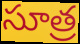
సూత్ర